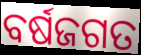
ବର୍ଷଜଗତ